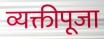
व्यक्तीपूजा